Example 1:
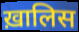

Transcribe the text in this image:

ख़ालिस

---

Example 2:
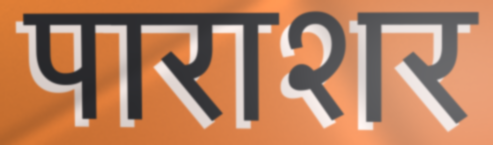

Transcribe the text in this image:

पाराशर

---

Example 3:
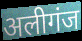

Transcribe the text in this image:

अलीगंज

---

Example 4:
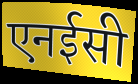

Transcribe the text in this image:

एनईसी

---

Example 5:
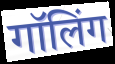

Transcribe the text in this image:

गॉलिंग